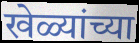
खेळ्यांच्या